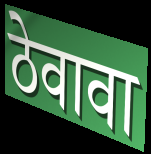
ठेवावा